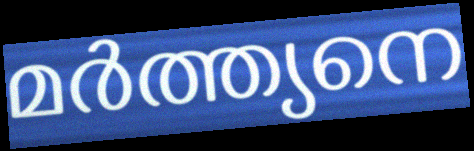
മർത്ത്യനെ